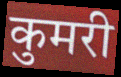
कुमरी